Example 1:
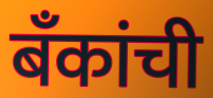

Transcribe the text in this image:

बँकांची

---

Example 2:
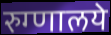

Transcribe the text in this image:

रुग्णालये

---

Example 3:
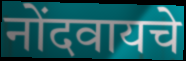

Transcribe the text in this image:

नोंदवायचे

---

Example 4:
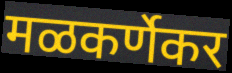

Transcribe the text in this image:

मळकर्णेकर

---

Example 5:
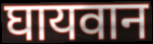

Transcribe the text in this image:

घायवान